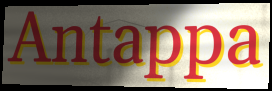
Antappa